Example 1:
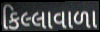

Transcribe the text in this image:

કિલ્લાવાળા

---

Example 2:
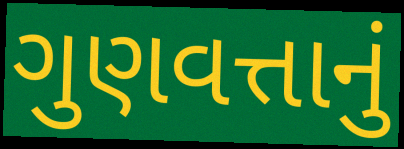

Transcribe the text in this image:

ગુણવત્તાનું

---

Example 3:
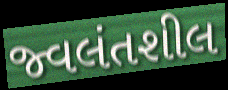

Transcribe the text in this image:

જ્વલંતશીલ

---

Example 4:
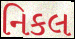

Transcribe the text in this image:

નિકલ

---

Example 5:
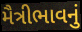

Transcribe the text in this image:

મૈત્રીભાવનું